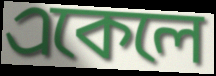
একেলে